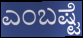
ಎಂಬಷ್ಟೆ